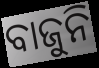
ବାଜୁନି